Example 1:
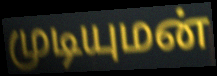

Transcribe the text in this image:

முடியுமன்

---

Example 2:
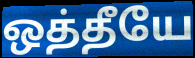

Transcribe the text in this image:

ஒத்தீயே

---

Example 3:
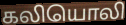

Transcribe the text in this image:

கலியொலி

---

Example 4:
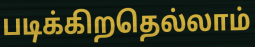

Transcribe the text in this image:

படிக்கிறதெல்லாம்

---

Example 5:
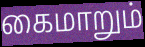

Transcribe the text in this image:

கைமாறும்